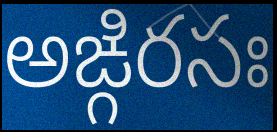
అఙ్గిరసః